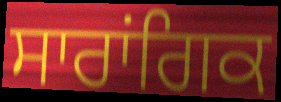
ਸਾਰਾਂਗਿਕ